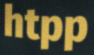
htpp